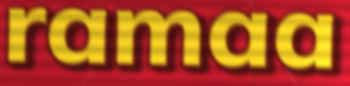
ramaa